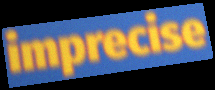
imprecise